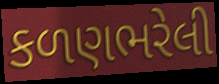
કળણભરેલી